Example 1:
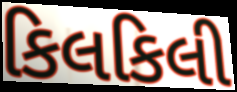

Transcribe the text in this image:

કિલકિલી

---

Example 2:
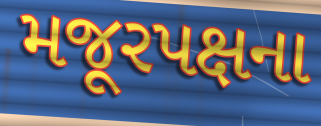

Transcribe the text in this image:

મજૂરપક્ષના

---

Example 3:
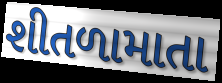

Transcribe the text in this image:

શીતળામાતા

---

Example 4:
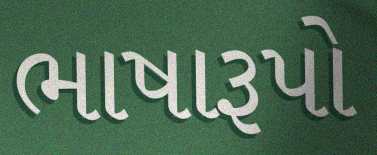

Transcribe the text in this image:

ભાષારૂપો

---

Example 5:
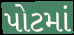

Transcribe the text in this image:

પોટમાં